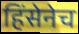
हिंसेनेच